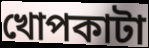
খোপকাটা